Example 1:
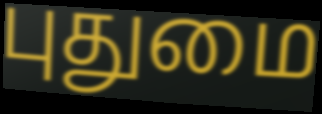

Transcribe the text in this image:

புதுமை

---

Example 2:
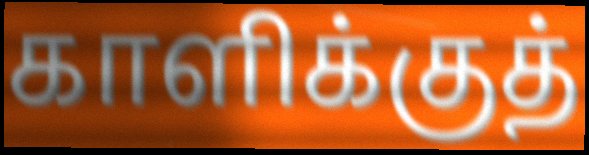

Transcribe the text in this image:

காளிக்குத்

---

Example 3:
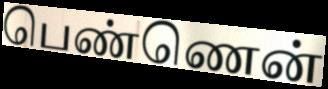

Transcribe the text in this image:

பெண்ணென்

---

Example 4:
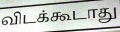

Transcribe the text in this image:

விடக்கூடாது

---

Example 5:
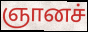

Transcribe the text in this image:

ஞானச்